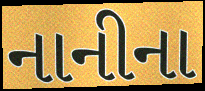
નાનીના